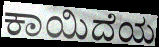
ಕಾಯಿದೆಯ